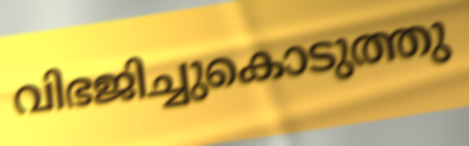
വിഭജിച്ചുകൊടുത്തു